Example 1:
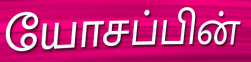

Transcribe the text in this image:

யோசப்பின்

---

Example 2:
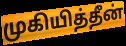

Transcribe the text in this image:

முகியித்தீன்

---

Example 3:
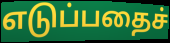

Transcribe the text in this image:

எடுப்பதைச்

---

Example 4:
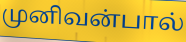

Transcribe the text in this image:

முனிவன்பால்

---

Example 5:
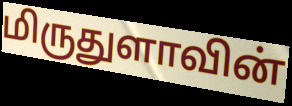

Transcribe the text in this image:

மிருதுளாவின்